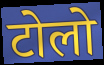
टोलो